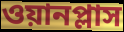
ওয়ানপ্লাস